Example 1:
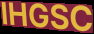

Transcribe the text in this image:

IHGSC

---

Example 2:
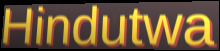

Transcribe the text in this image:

Hindutwa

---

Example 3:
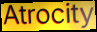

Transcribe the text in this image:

Atrocity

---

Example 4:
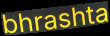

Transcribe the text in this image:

bhrashta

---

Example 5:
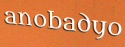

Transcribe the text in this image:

anobadyo